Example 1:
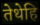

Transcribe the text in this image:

तेथेहि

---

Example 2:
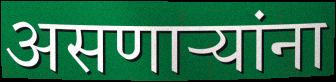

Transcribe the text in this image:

असणाऱ्यांना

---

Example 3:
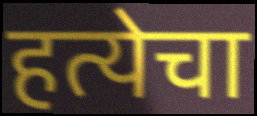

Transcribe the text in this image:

हत्येचा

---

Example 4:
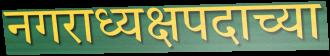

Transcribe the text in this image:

नगराध्यक्षपदाच्या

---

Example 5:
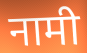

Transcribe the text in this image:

नामी